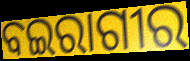
ବଇରାଗୀର